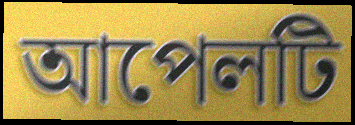
আপেলটি